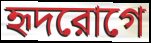
হৃদরোগে